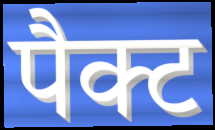
पैक्ट